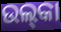
ଉଲ୍‌କା